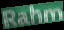
Rahm